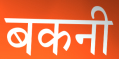
बकनी